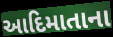
આદિમાતાના